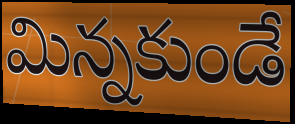
మిన్నకుండే